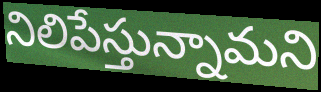
నిలిపేస్తున్నామని